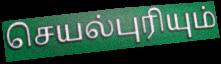
செயல்புரியும்